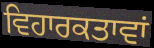
ਵਿਹਾਰਕਤਾਵਾਂ